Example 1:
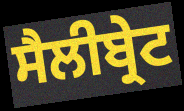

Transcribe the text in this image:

ਸੈਲੀਬ੍ਰੇਟ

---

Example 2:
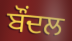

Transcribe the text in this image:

ਬੌਂਦਲ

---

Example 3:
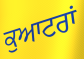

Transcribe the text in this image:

ਕੁਆਟਰਾਂ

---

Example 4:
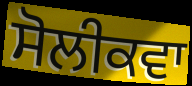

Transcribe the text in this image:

ਸੋਲੀਕਵਾ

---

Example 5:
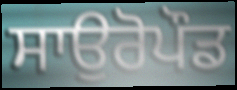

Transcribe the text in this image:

ਸਾਉਰੋਪੌਡ